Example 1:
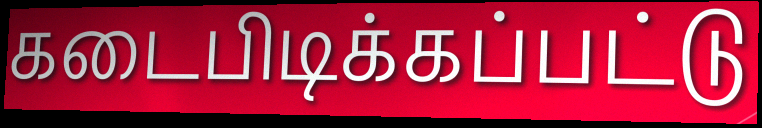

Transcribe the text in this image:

கடைபிடிக்கப்பட்டு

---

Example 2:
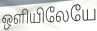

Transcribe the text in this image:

ஒளியிலேயே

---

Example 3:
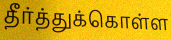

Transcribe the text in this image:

தீர்த்துக்கொள்ள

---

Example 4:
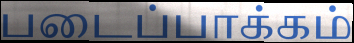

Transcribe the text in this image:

படைப்பாக்கம்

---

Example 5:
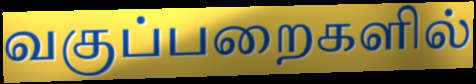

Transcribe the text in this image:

வகுப்பறைகளில்